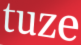
tuze